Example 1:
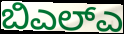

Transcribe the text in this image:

ಬಿಎಲ್ಎ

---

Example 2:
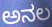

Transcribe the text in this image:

ಅನಲ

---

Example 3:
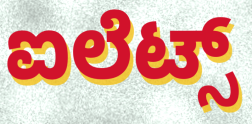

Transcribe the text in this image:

ಐಲೆಟ್ಸ್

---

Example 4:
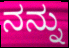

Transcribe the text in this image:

ನನ್ನು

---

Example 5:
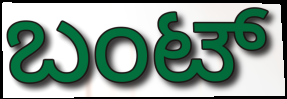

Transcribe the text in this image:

ಬಂಟ್